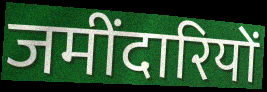
जमींदारियों